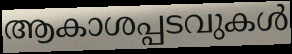
ആകാശപ്പടവുകൾ